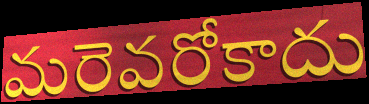
మరెవరోకాదు